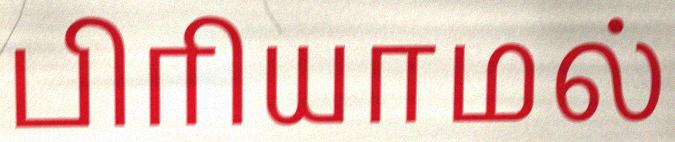
பிரியாமல்